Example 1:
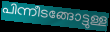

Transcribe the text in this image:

പിന്നീടങ്ങോട്ടുള്ള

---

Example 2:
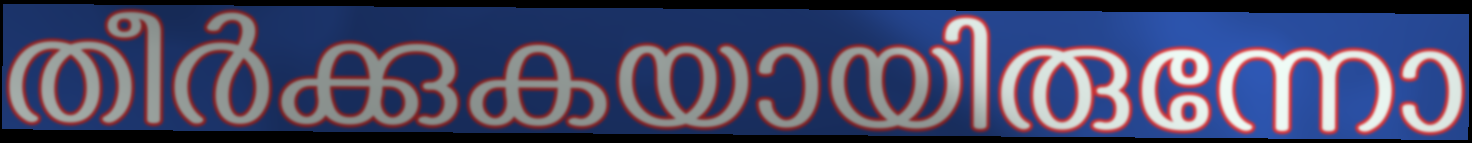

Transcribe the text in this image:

തീർക്കുകയായിരുന്നോ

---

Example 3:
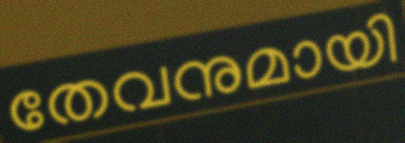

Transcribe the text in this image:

തേവനുമായി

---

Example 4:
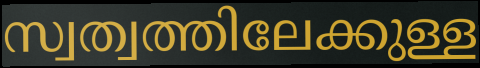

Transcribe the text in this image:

സ്വത്വത്തിലേക്കുള്ള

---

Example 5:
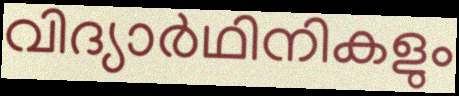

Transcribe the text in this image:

വിദ്യാർഥിനികളും